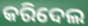
କରିଦେଲ